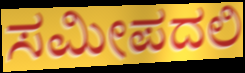
ಸಮೀಪದಲಿ